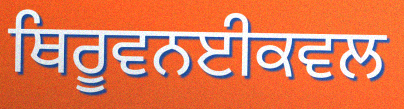
ਥਿਰੂਵਨਈਕਵਲ